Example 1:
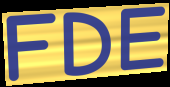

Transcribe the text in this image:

FDE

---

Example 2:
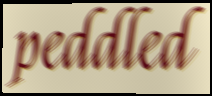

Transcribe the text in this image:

peddled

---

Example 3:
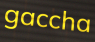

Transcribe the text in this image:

gaccha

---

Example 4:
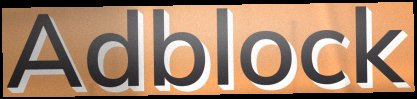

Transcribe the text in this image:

Adblock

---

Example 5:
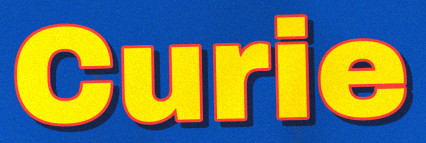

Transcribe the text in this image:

Curie